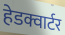
हेडक्वार्टर